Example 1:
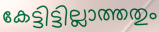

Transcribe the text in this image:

കേട്ടിട്ടില്ലാത്തതും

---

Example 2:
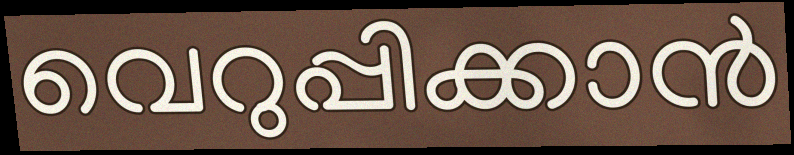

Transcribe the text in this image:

വെറുപ്പിക്കാൻ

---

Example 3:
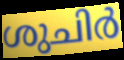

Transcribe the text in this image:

ശുചിർ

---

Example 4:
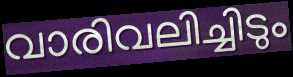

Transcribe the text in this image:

വാരിവലിച്ചിടും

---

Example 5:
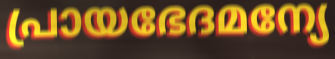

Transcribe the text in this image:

പ്രായഭേദമന്യേ